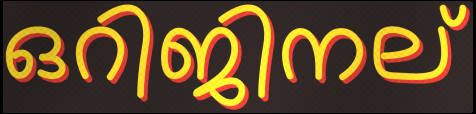
ഒറിജിനല്